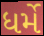
ધર્મે